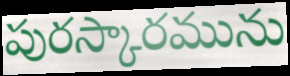
పురస్కారమును